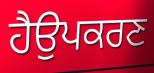
ਹੈਉਪਕਰਣ